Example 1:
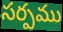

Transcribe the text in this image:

సర్పము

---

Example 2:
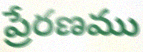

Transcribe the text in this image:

ప్రేరణము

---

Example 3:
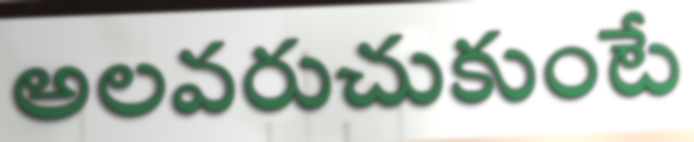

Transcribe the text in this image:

అలవరుచుకుంటే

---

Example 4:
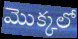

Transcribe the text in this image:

మొక్కలో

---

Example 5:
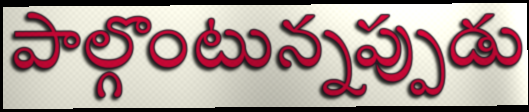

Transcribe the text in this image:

పాల్గొంటున్నప్పుడు